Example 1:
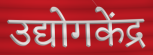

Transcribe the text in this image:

उद्योगकेंद्र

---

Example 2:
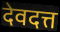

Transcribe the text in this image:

देवदत्त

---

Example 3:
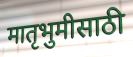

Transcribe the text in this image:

मातृभुमीसाठी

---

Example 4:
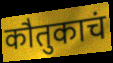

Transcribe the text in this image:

कौतुकाचं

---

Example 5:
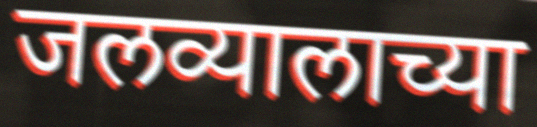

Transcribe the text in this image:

जलव्यालाच्या